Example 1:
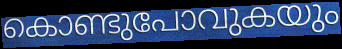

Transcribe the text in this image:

കൊണ്ടുപോവുകയും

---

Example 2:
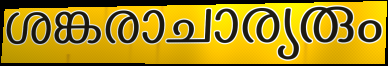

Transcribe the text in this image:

ശങ്കരാചാര്യരും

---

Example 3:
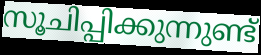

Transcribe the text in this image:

സൂചിപ്പിക്കുന്നുണ്ട്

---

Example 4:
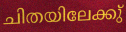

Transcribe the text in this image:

ചിതയിലേക്കു്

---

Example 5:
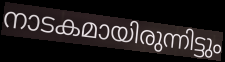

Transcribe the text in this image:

നാടകമായിരുന്നിട്ടും